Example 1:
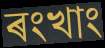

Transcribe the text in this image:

ৰংখাং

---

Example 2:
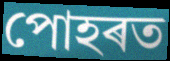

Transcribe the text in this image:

পোহৰত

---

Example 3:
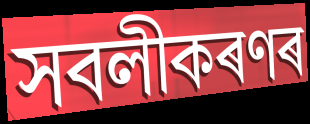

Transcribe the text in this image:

সবলীকৰণৰ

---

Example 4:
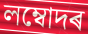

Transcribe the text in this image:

লম্বোদৰ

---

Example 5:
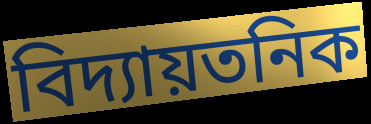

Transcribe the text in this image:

বিদ্যায়তনিক